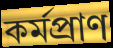
কর্মপ্রাণ